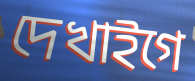
দেখাইগে